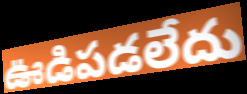
ఊడిపడలేదు